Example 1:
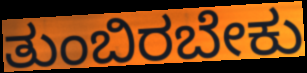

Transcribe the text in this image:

ತುಂಬಿರಬೇಕು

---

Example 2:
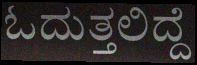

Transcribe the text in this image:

ಓದುತ್ತಲಿದ್ದೆ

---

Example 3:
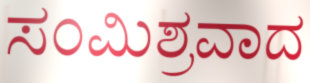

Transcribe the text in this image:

ಸಂಮಿಶ್ರವಾದ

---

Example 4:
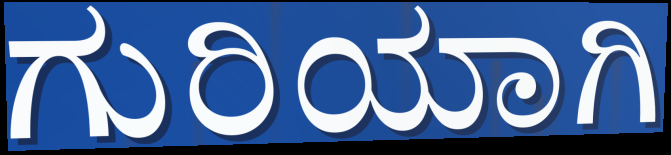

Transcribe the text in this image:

ಗುರಿಯಾಗಿ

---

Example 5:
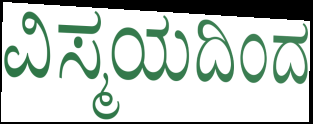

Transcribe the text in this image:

ವಿಸ್ಮಯದಿಂದ